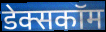
डेक्सकॉम